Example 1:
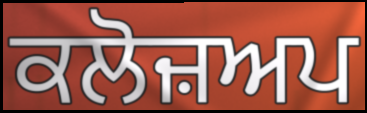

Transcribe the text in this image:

ਕਲੋਜ਼ਅਪ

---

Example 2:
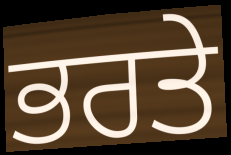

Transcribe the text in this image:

ਭਰਤੇ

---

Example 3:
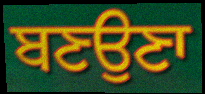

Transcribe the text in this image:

ਬਣਉਣਾ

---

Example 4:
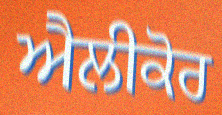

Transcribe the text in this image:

ਐਲੀਕੋਰ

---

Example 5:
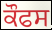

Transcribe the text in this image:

ਕੌਫਸ